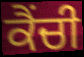
ਕੈਂਚੀ